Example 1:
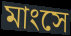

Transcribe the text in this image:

মাংসে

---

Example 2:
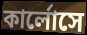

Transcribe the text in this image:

কার্লোসে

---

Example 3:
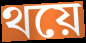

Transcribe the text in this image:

থয়ে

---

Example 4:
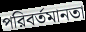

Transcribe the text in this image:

পরিবর্তমানতা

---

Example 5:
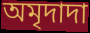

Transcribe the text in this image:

অমৃদাদা